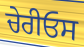
ਚੇਰੀਓਸ